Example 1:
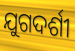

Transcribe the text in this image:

ଯୁଗଦର୍ଶୀ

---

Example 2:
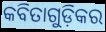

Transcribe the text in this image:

କବିତାଗୁଡ଼ିକର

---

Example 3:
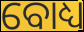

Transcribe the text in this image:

ବୋଧ୍ୟ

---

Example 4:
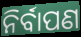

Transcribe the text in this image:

ନିର୍ବାପଣ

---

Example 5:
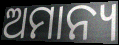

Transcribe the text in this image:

ଅମାନ୍ଯ